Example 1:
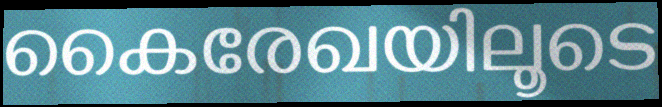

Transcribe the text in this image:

കൈരേഖയിലൂടെ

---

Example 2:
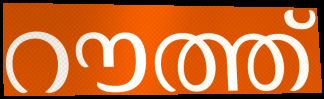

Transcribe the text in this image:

റൗത്ത്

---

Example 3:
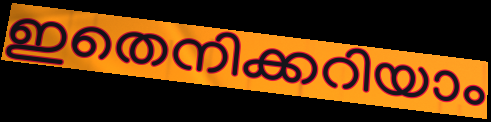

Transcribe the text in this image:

ഇതെനിക്കറിയാം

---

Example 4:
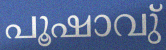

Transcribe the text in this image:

പൂഷാവു്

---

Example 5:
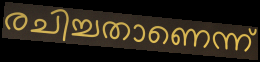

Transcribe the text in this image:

രചിച്ചതാണെന്ന്